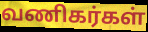
வணிகர்கள்